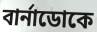
বার্নাডোকে